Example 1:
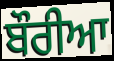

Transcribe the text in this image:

ਬੌਰੀਆ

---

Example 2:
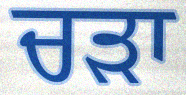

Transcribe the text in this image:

ਚੜਾ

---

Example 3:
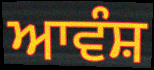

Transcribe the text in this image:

ਆਵੰਸ਼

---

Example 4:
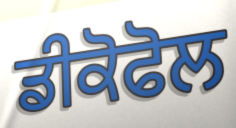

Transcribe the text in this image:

ਡੀਕੋਫੋਲ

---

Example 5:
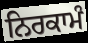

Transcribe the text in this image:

ਨਿਰਕਾਮੰ